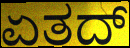
ಏತದ್